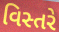
વિસ્તરે